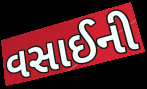
વસાઈની